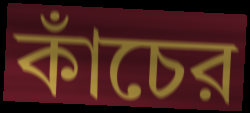
কাঁচের